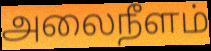
அலைநீளம்